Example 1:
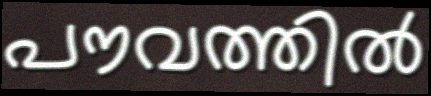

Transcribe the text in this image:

പൗവത്തിൽ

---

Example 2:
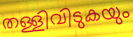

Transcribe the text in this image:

തള്ളിവിടുകയും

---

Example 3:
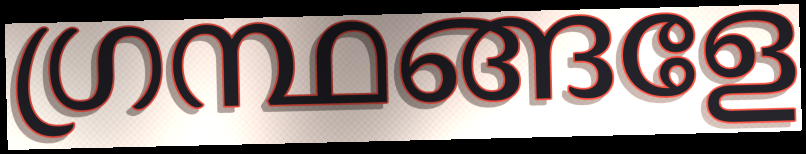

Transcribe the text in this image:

ഗ്രന്ഥങ്ങളേ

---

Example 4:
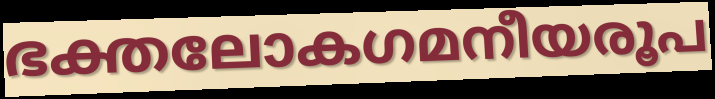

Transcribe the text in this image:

ഭക്തലോകഗമനീയരൂപ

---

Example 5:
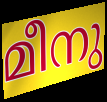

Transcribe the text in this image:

മീനു